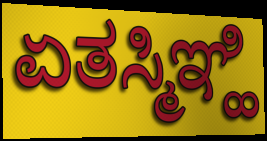
ಏತಸ್ಮಿಞ್ಹಿ